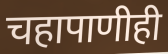
चहापाणीही